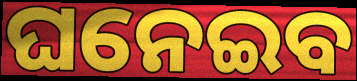
ଘନେଇବ